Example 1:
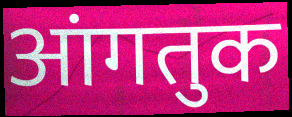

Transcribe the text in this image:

आंगतुक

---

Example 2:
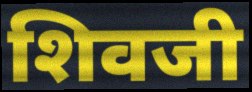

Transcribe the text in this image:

शिवजी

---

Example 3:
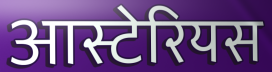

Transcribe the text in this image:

आस्टेरियस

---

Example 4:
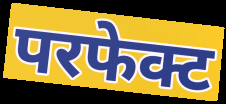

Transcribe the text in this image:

परफेक्ट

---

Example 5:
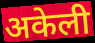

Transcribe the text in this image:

अकेली